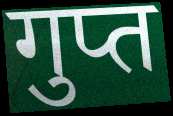
गुप्त